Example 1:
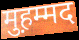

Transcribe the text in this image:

मुह़म्मद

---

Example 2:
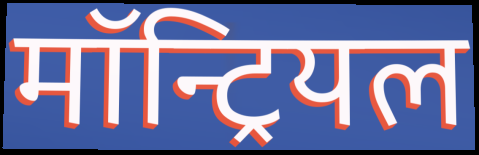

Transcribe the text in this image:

मॉन्ट्रियल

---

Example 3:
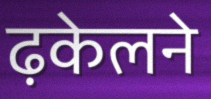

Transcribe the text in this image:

ढ़केलने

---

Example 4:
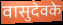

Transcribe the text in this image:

वासुदेवके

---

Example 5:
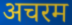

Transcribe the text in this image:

अचरम